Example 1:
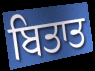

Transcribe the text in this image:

ਬਿਤਾਤ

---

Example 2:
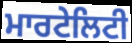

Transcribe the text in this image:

ਮਾਰਟੇਲਿਟੀ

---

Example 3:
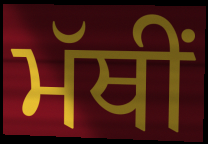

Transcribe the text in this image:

ਮੱਥੀਂ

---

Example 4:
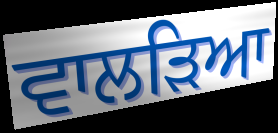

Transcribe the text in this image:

ਵਾਲੜਿਆ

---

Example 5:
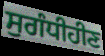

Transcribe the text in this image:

ਸੁਗੰਧੀਹੀਣ